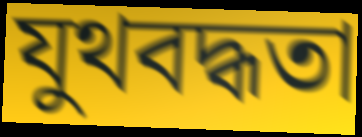
যুথবদ্ধতা